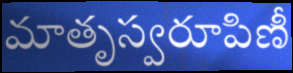
మాతృస్వరూపిణీ